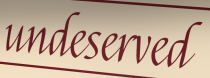
undeserved